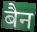
बैन